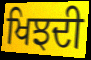
ਖਿਝਦੀ